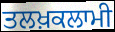
ਤਲਖ਼ਕਲਾਮੀ